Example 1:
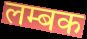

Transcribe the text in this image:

लम्बक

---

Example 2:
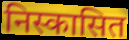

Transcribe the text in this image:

निस्कासित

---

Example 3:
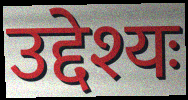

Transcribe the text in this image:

उद्देश्यः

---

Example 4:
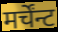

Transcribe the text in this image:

मर्चेंन्ट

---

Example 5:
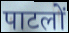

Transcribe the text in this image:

पाटलों